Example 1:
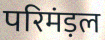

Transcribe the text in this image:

परिमंड़ल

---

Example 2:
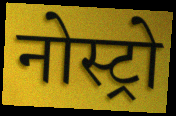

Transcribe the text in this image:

नोस्ट्रो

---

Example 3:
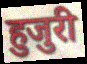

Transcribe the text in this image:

हुजुरी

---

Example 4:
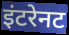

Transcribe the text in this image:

इंटरेनट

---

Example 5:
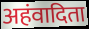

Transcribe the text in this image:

अहंवादिता